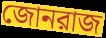
জোনরাজ